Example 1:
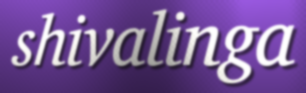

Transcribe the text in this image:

shivalinga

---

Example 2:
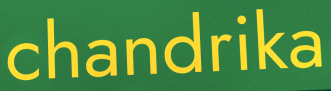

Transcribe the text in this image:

chandrika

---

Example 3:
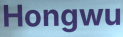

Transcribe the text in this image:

Hongwu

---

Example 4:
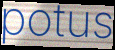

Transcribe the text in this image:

potus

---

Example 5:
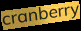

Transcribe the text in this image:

cranberry